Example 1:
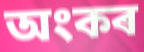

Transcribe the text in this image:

অংকৰ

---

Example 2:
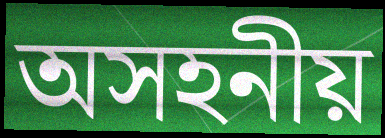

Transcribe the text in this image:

অসহনীয়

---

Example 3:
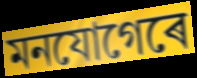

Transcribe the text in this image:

মনযোগেৰে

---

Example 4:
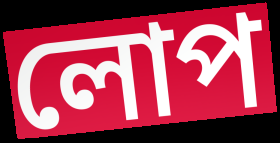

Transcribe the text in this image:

লোপ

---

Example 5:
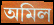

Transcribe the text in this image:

অমিল